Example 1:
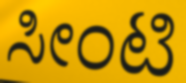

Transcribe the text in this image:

ಸೀಂಟಿ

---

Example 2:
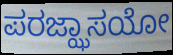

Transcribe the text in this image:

ಪರಜ್ಝಾಸಯೋ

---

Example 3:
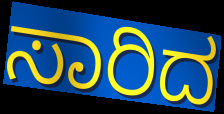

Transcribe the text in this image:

ಸಾರಿದ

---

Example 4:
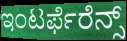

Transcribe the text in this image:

ಇಂಟರ್ಫೆರೆನ್ಸ್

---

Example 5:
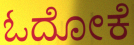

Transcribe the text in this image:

ಓದೋಕೆ